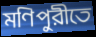
মণিপুরীতে